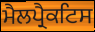
ਮੈਲਪ੍ਰੈਕਟਿਸ